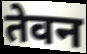
तेवन